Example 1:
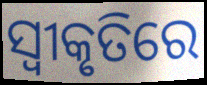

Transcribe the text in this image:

ସ୍ବୀକୃତିରେ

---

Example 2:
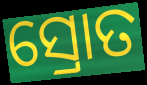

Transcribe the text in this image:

ସ୍ରୋତ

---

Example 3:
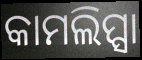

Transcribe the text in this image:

କାମଲିପ୍ସା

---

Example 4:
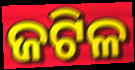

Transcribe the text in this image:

ଜଟିଳ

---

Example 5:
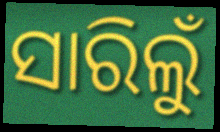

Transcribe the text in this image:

ସାରିଲୁଁ